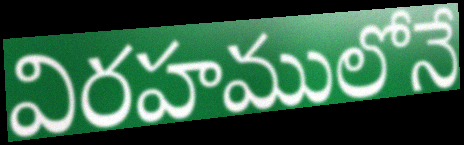
విరహములోనే